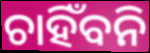
ଚାହିଁବନି